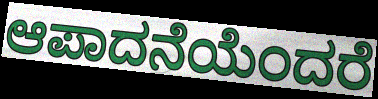
ಆಪಾದನೆಯೆಂದರೆ